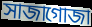
সাজাগোজা